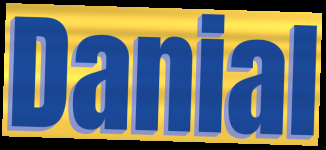
Danial